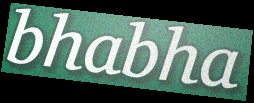
bhabha